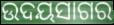
ଉଦୟସାଗର